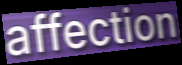
affection